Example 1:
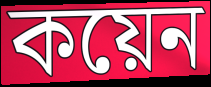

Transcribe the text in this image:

কয়েন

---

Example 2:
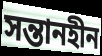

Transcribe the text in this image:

সন্তানহীন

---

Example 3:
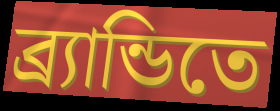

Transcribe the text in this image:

ব্র্যান্ডিতে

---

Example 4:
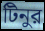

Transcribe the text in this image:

টিনুর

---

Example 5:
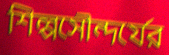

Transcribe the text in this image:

শিল্পসৌন্দর্যের